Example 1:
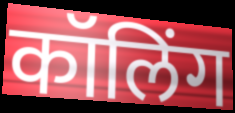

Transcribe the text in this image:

कॉलिंग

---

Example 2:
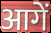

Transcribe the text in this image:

आगें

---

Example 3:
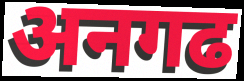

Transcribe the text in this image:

अनगढ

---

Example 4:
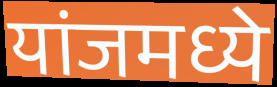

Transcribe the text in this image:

यांजमध्ये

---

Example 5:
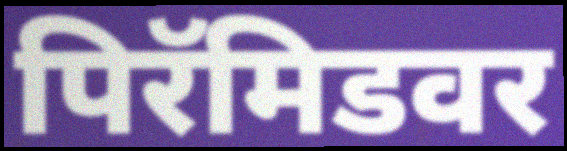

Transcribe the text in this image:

पिरॅमिडवर